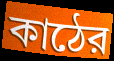
কাঠের